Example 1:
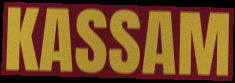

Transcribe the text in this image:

KASSAM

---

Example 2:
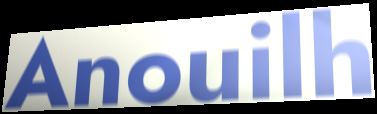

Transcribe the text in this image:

Anouilh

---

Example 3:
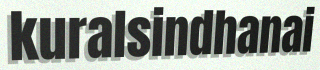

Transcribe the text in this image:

kuralsindhanai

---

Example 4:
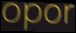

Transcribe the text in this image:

opor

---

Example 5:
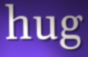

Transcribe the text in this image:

hug